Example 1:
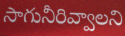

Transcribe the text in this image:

సాగునీరివ్వాలని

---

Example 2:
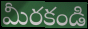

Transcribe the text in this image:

మీరకండి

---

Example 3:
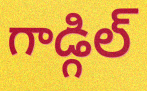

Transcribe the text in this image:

గాడ్గిల్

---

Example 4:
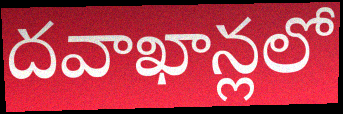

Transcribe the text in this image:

దవాఖాన్లలో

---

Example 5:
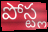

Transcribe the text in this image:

పోస్ట్ల